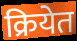
क्रियेत